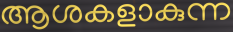
ആശകളാകുന്ന